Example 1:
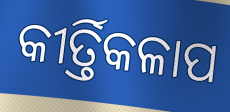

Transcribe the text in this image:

କୀର୍ତ୍ତିକଳାପ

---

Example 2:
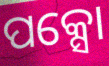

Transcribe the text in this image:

ପକ୍ସୋ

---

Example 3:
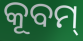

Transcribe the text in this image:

କୂବମ୍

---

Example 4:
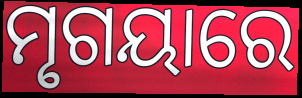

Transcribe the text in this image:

ମୃଗୟାରେ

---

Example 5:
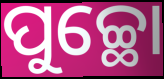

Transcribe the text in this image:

ପୁଚ୍ଛୋ